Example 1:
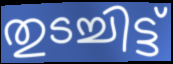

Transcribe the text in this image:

തുടച്ചിട്ട്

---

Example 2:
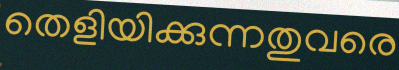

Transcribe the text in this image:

തെളിയിക്കുന്നതുവരെ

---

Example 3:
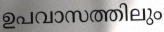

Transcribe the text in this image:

ഉപവാസത്തിലും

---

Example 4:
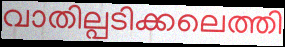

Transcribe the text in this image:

വാതില്പടിക്കലെത്തി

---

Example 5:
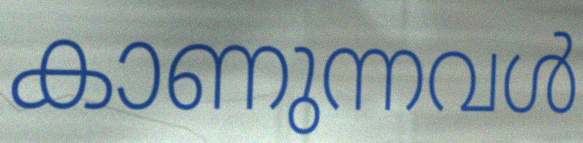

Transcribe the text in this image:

കാണുന്നവൾ